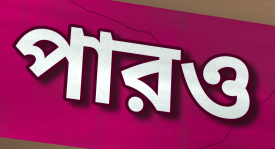
পারও